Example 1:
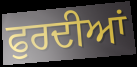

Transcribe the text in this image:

ਫੁਰਦੀਆਂ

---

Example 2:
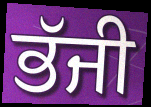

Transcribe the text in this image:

ਭੱਜੀ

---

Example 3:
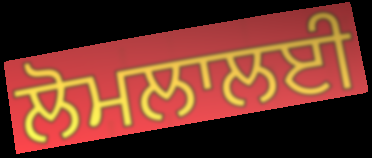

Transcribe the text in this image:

ਲੋਮਲਾਲਈ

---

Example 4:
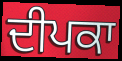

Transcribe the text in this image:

ਦੀਪਕਾ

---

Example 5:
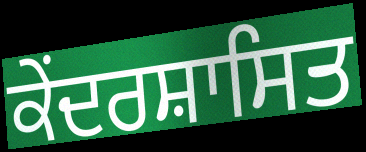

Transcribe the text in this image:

ਕੇਂਦਰਸ਼ਾਸਿਤ